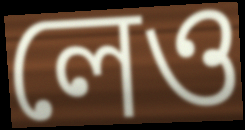
লেও